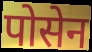
पोसेन